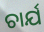
ଚାର୍ଯ